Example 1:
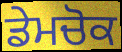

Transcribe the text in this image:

ਡੇਮਚੋਕ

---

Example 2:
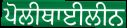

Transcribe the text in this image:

ਪੋਲੀਥਾਈਲੀਨ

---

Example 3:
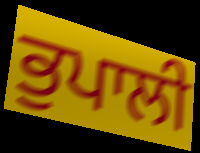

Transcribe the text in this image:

ਭੁਪਾਲੀ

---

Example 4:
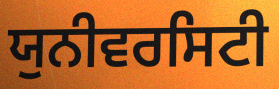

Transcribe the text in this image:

ਯੁਨੀਵਰਸਿਟੀ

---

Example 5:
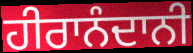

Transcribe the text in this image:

ਹੀਰਾਨੰਦਾਨੀ